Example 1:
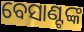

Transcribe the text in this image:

ବେସାଣ୍ଟଙ୍କ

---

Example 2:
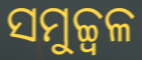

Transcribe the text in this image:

ସମୁଚ୍ଚ୍ୱଳ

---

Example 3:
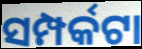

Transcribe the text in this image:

ସମ୍ପର୍କଟା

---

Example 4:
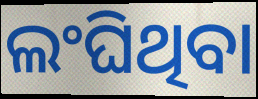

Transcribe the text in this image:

ଲଂଘିଥିବା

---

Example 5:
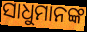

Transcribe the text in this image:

ସାଧୁମାନଙ୍କ